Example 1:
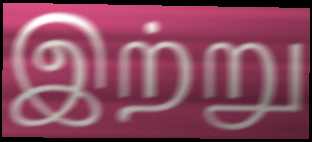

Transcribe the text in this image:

இற்று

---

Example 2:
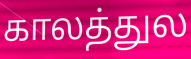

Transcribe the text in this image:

காலத்துல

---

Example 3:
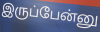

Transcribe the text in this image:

இருப்பேன்னு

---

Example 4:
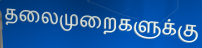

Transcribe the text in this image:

தலைமுறைகளுக்கு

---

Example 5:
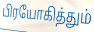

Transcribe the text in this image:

பிரயோகித்தும்